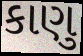
કાણુ